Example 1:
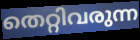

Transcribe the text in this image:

തെറ്റിവരുന്ന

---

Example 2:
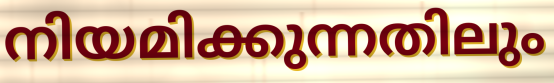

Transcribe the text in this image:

നിയമിക്കുന്നതിലും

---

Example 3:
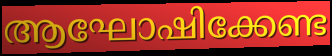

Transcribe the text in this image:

ആഘോഷിക്കേണ്ട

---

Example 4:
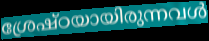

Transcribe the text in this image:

ശ്രേഷ്ഠയായിരുന്നവൾ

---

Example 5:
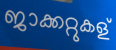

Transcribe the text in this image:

ജാക്കറ്റുകള്